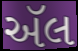
ઍલ